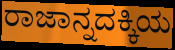
ರಾಜಾನ್ನದಕ್ಕಿಯ